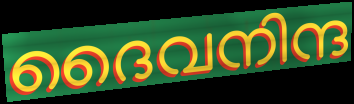
ദൈവനിന്ദ